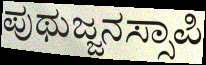
ಪುಥುಜ್ಜನಸ್ಸಾಪಿ